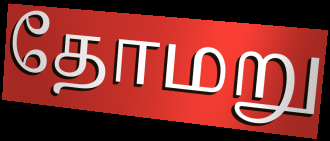
தோமறு